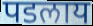
पडलाय